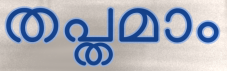
തപ്തമാം